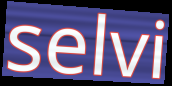
selvi